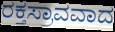
ರಕ್ತಸ್ರಾವವಾದ